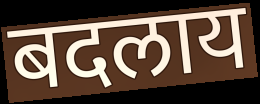
बदलाय